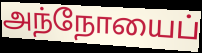
அந்நோயைப்